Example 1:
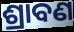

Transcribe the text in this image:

ଶ୍ରାବଣ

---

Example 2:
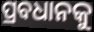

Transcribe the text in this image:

ପ୍ରବଧାନକୁ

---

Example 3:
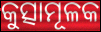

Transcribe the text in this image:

କୁତ୍ସାମୂଳକ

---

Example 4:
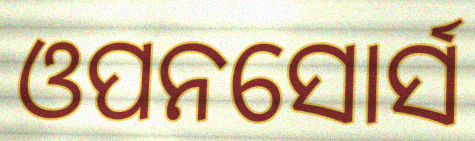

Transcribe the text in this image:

ଓପନସୋର୍ସ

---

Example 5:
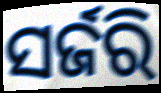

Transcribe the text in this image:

ସର୍ଜରି